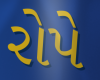
રોપે